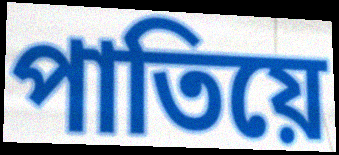
পাতিয়ে